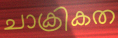
ചാക്രികത